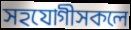
সহযোগীসকলে